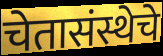
चेतासंस्थेचे